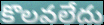
కొలవలేదు